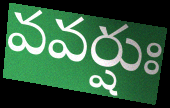
వవర్షుః